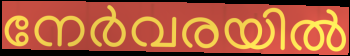
നേർവരയിൽ